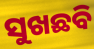
ସୁଖଛବି